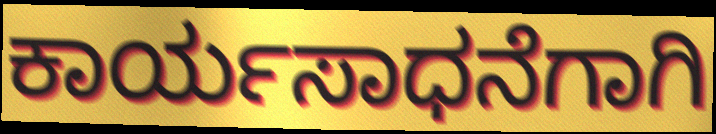
ಕಾರ್ಯಸಾಧನೆಗಾಗಿ